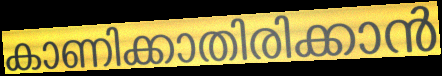
കാണിക്കാതിരിക്കാൻ